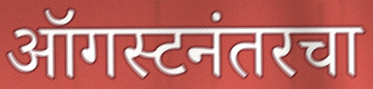
ऑगस्टनंतरचा